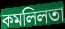
কমলিলতা